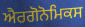
ਐਰਗੋਨੋਮਿਕਸ